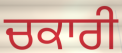
ਚਕਾਰੀ